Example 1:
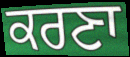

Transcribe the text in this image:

ਕਰਣਾ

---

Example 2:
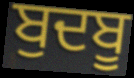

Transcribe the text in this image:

ਬੁਦਬੂ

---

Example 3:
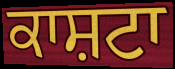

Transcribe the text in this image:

ਕਾਸ਼ਟਾ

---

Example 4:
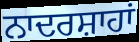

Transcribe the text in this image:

ਨਾਦਰਸ਼ਾਹਾਂ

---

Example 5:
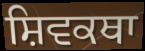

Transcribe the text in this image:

ਸ਼ਿਵਕਥਾ